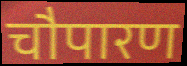
चौपारण